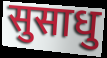
सुसाधु